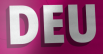
DEU